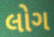
લોગ